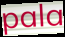
pala